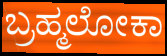
ಬ್ರಹ್ಮಲೋಕಾ